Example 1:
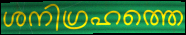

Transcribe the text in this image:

ശനിഗ്രഹത്തെ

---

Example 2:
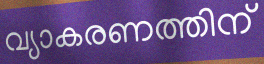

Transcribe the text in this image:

വ്യാകരണത്തിന്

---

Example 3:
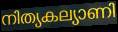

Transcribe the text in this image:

നിത്യകല്യാണി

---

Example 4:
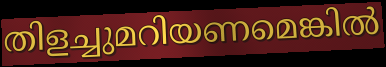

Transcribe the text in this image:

തിളച്ചുമറിയണമെങ്കിൽ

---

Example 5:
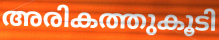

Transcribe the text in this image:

അരികത്തുകൂടി